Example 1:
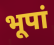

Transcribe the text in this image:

भूपां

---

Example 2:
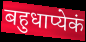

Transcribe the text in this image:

बहुधाप्येकं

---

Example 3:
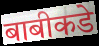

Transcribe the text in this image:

बाबीकडे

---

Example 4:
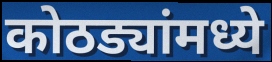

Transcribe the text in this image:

कोठड्यांमध्ये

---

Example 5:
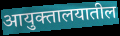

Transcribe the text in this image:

आयुक्तालयातील